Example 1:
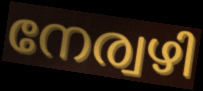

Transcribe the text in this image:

നേര്വഴി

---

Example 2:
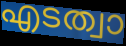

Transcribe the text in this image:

എടത്വാ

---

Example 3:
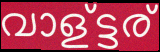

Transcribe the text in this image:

വാള്ട്ടര്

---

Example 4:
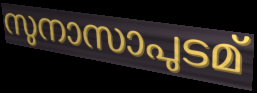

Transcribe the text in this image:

സുനാസാപുടമ്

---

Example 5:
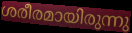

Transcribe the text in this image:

ശരീരമായിരുന്നു